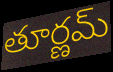
తూర్ణమ్